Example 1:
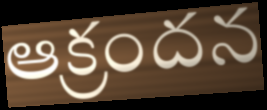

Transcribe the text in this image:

ఆక్రందన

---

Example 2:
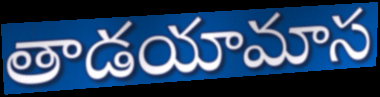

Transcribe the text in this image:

తాడయామాస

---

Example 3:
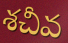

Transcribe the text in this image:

శచీవ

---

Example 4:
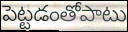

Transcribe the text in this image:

పెట్టడంతోపాటు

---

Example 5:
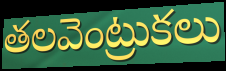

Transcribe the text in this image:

తలవెంట్రుకలు